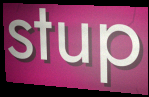
stup